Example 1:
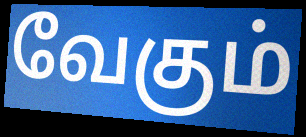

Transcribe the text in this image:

வேகும்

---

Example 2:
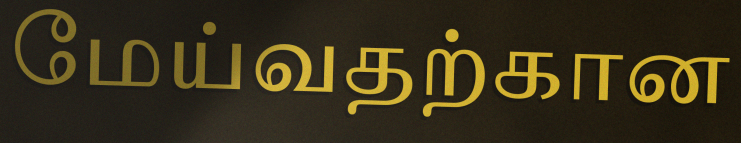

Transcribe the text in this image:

மேய்வதற்கான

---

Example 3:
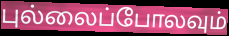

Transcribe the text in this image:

புல்லைப்போலவும்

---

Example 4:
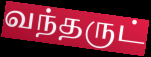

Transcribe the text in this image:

வந்தருட்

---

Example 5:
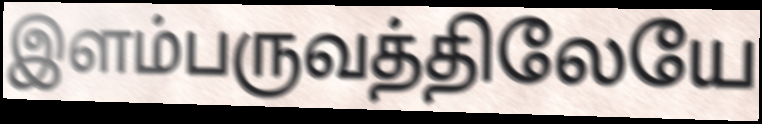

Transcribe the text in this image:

இளம்பருவத்திலேயே